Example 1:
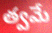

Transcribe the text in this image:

త్వమే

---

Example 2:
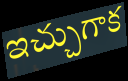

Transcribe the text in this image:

ఇచ్చుగాక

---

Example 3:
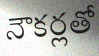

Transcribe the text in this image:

నౌకర్లతో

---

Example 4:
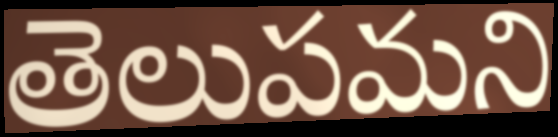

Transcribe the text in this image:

తెలుపమని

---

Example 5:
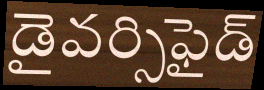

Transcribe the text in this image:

డైవర్సిఫైడ్